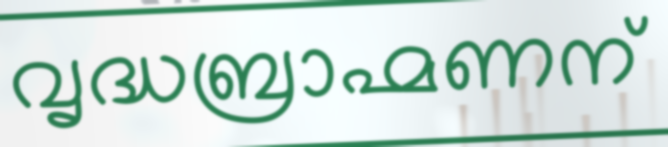
വൃദ്ധബ്രാഹ്മണന്